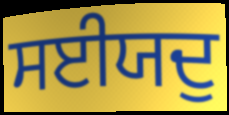
ਸਈਯਦੁ